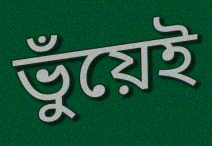
ভুঁয়েই